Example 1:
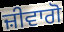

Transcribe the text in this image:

ਜ਼ੀਵਾਗੋ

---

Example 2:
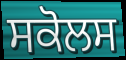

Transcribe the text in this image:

ਸਕੋਲਸ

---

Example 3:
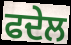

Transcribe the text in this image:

ਫਦੇਲ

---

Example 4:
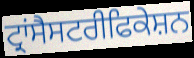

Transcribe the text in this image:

ਟ੍ਰਾਂਸੈਸਟਰੀਫਿਕੇਸ਼ਨ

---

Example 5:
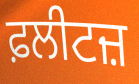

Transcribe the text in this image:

ਫ਼ਲੀਟਜ਼